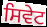
ਸਿਵੇਟ